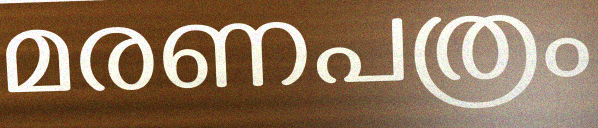
മരണപത്രം